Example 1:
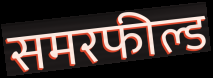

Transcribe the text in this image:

समरफील्ड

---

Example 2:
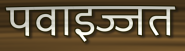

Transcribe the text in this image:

पवाइज्जत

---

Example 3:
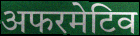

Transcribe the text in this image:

अफरमेटिव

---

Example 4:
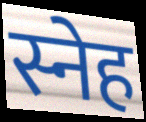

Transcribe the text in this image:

स्नेह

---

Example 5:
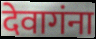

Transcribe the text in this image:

देवागंना